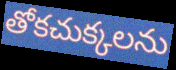
తోకచుక్కలను